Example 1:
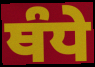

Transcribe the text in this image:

ਥੰਧੇ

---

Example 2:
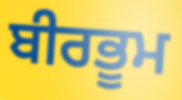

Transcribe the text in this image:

ਬੀਰਭੂਮ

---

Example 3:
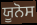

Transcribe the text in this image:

ਯੂਨੋਸ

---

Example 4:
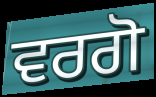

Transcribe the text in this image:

ਵਰਗੋ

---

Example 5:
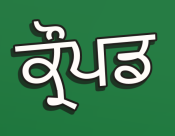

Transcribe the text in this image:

ਕ੍ਰੌਪਡ